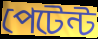
পেটেন্ট